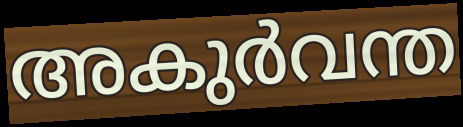
അകുർവന്ത